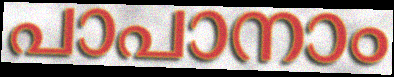
പാപാനാം